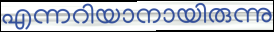
എന്നറിയാനായിരുന്നു